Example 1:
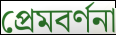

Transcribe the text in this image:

প্রেমবর্ণনা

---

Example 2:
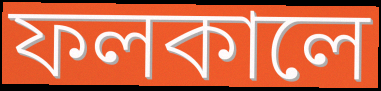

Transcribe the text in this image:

ফলকালে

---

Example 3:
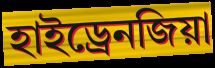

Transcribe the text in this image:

হাইড্রেনজিয়া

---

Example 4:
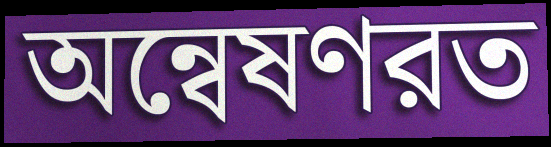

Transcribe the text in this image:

অন্বেষণরত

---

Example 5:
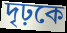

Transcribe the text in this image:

দৃঢ়কে